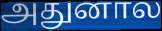
அதுனால